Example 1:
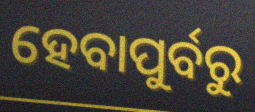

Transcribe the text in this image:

ହେବାପୁର୍ବରୁ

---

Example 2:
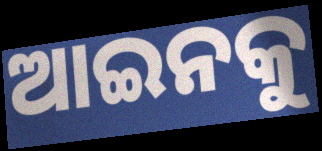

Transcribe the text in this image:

ଆଇନକୁ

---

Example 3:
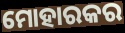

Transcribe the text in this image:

ମୋହାରକର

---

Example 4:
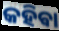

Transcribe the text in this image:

କହିଵା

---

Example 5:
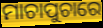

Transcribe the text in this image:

ମାଚାପୁଚାରେ